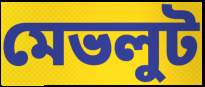
মেভলুট